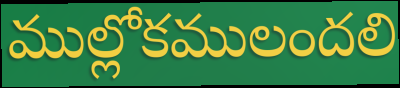
ముల్లోకములందలి